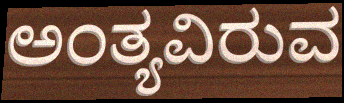
ಅಂತ್ಯವಿರುವ